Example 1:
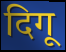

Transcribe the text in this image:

दिगू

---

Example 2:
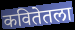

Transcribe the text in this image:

कवितेतला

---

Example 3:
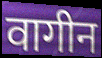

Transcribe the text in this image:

वागीन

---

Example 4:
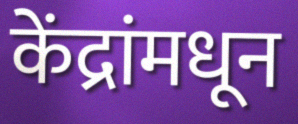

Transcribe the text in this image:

केंद्रांमधून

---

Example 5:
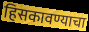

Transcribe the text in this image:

हिसकावण्याचा